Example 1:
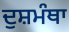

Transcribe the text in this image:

ਦੁਸ਼ਮੰਥਾ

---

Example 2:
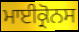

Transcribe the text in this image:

ਮਾਈਕ੍ਰੋਨਸ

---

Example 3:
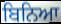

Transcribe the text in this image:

ਬਿਨਿਆ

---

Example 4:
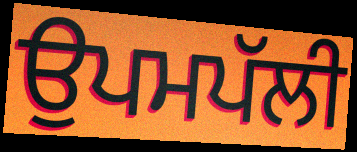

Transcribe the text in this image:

ਉਪਮਪੱਲੀ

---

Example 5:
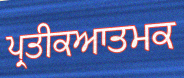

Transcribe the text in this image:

ਪ੍ਰਤੀਕਆਤਮਕ